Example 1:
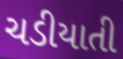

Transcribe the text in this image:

ચડીયાતી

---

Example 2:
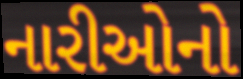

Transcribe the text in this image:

નારીઓનો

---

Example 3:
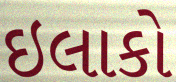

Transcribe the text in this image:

ઇલાકો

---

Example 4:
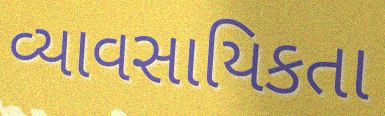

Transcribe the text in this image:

વ્યાવસાયિકતા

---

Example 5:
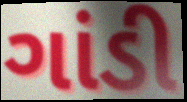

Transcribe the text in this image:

ગાંડી